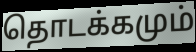
தொடக்கமும்